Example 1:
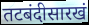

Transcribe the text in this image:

तटबंदीसारखं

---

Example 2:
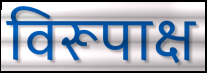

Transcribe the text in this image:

विरूपाक्ष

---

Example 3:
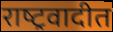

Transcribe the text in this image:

राष्ट्रवादीत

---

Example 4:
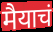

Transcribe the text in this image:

मैयाचं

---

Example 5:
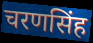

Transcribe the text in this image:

चरणसिंह